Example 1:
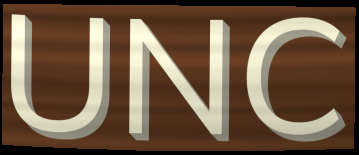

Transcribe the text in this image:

UNC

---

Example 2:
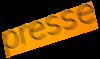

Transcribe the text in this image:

presse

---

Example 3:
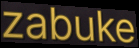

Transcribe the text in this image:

zabuke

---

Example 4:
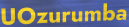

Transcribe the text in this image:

UOzurumba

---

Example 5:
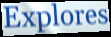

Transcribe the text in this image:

Explores